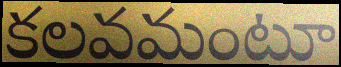
కలవమంటూ